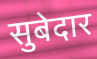
सुबेदार